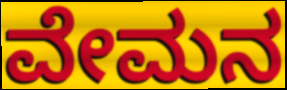
ವೇಮನ